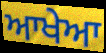
ਆਖੇਆ